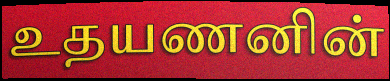
உதயணனின்